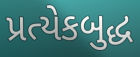
પ્રત્યેકબુદ્ધ